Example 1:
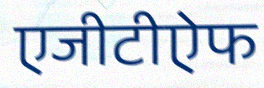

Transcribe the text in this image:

एजीटीऐफ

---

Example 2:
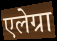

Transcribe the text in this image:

एलेग्रा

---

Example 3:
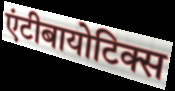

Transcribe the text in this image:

एंटीबायोटिक्स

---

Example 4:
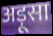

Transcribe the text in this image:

अड़ूसा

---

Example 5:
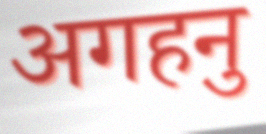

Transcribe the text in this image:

अगहनु